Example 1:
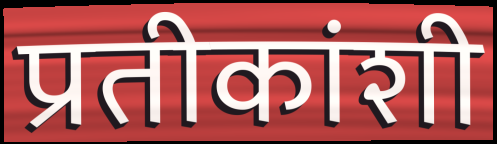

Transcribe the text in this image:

प्रतीकांशी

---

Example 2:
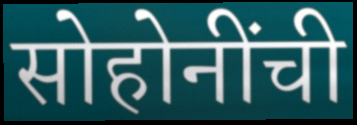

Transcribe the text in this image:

सोहोनींची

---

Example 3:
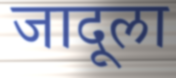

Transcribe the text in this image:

जादूला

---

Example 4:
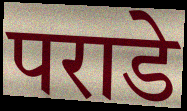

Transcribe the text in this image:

पराडे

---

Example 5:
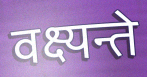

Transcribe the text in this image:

वक्ष्यन्ते